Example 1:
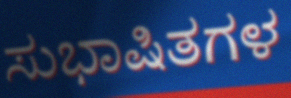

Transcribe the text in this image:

ಸುಭಾಷಿತಗಳ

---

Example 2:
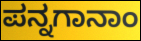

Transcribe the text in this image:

ಪನ್ನಗಾನಾಂ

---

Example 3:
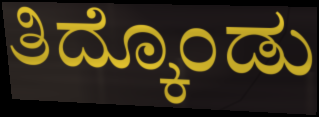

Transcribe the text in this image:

ತಿದ್ಕೊಂಡು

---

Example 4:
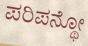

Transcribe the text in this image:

ಪರಿಪನ್ಥೋ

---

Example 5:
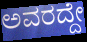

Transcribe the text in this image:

ಅವರದ್ದೇ